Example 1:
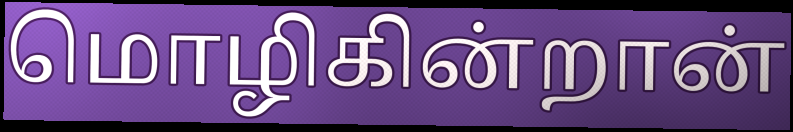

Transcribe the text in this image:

மொழிகின்றான்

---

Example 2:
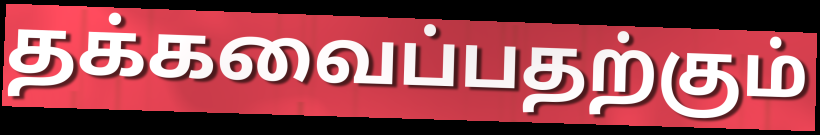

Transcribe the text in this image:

தக்கவைப்பதற்கும்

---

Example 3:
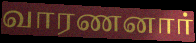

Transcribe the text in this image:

வாரணனார்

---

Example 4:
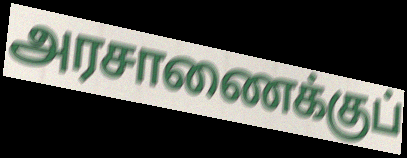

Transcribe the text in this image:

அரசாணைக்குப்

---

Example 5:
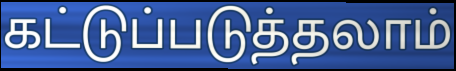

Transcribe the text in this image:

கட்டுப்படுத்தலாம்